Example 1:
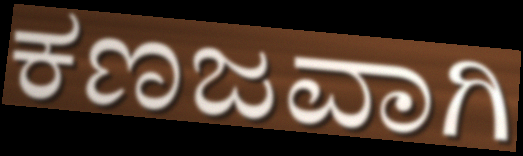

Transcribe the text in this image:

ಕಣಜವಾಗಿ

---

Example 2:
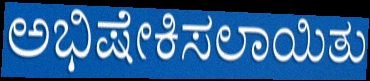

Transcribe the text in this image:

ಅಭಿಷೇಕಿಸಲಾಯಿತು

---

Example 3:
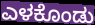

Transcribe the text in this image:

ಎಳಕೊಂಡು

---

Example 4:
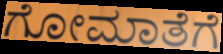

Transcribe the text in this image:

ಗೋಮಾತೆಗೆ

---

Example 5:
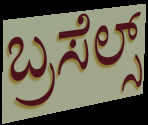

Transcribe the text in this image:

ಬ್ರಸೆಲ್ಸ್